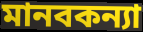
মানবকন্যা